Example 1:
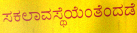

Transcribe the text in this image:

ಸಕಲಾವಸ್ಥೆಯೆಂತೆಂದಡೆ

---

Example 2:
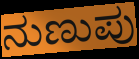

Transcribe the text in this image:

ನುಣುಪು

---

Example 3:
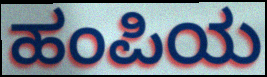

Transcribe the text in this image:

ಹಂಪಿಯ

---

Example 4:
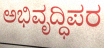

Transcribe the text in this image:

ಅಭಿವೃದ್ಧಿಪರ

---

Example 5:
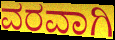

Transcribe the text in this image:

ವರವಾಗಿ